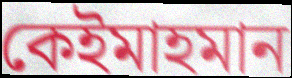
কেইমাহমান